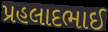
પ્રહલાદભાઈ